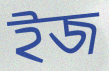
ইজ